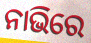
ନାଭିରେ